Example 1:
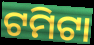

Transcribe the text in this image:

ଟମିଟା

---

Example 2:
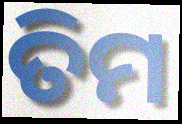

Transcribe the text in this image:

ତିମ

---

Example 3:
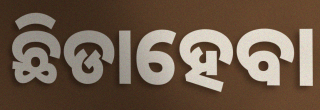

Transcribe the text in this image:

ଛିଡାହେବା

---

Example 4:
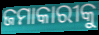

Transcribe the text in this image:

ଜମାକାରୀକୁ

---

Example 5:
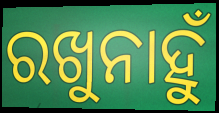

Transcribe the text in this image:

ରଖୁନାହୁଁ